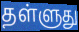
தள்ளுது